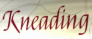
Kneading